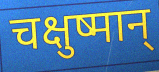
चक्षुष्मान्